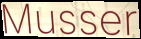
Musser